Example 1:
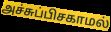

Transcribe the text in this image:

அச்சுப்பிசகாமல்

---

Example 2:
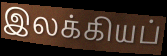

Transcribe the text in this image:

இலக்கியப்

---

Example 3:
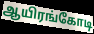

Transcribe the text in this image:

ஆயிரங்கோடி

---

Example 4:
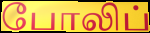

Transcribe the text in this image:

போலிப்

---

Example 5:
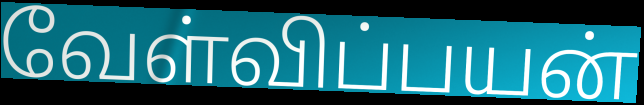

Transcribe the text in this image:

வேள்விப்பயன்